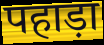
पहाड़ा